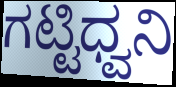
ಗಟ್ಟಿಧ್ವನಿ